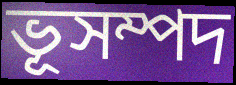
ভূসম্পদ